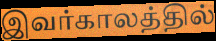
இவர்காலத்தில்